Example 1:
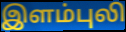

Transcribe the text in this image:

இளம்புலி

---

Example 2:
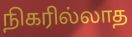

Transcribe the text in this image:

நிகரில்லாத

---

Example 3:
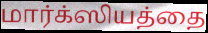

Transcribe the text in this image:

மார்க்ஸியத்தை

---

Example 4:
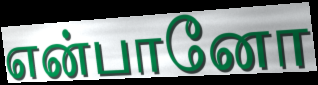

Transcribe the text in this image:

என்பானோ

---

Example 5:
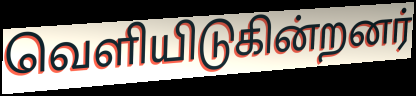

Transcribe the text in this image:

வெளியிடுகின்றனர்